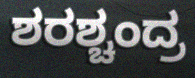
ಶರಶ್ಚಂದ್ರ